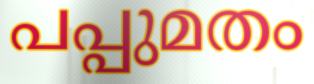
പപ്പുമതം